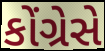
કોંગ્રેસે